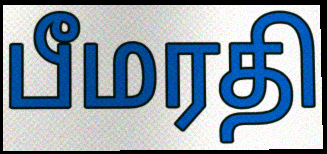
பீமரதி